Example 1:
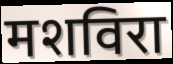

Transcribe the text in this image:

मशविरा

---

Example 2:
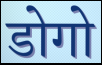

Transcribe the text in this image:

डोगो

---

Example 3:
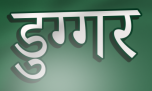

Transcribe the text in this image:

डुग्गर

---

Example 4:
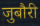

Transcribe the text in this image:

जुबौरी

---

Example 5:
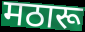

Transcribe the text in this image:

मठारू